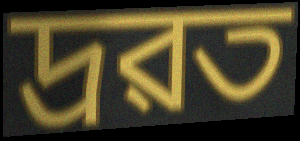
দ্ৰৱত